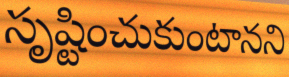
సృష్టించుకుంటానని